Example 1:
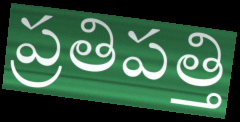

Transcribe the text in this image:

ప్రతిపత్తి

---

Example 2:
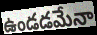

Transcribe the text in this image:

ఉండడమేనా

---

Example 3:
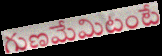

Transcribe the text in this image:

గుణమేమిటంటే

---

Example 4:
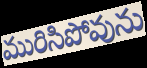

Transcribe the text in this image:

మురిసిపోవును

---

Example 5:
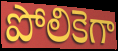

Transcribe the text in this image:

పోలికెగా